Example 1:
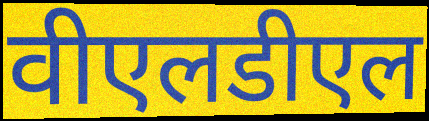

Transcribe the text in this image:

वीएलडीएल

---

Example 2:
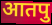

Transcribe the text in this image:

आतपु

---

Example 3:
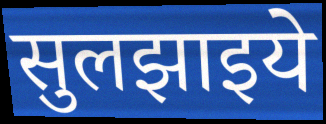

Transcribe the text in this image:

सुलझाइये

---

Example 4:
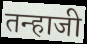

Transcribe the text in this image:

तन्हाजी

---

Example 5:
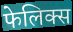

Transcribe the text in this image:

फेलिक्स